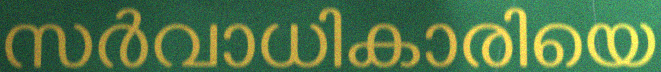
സർവാധികാരിയെ